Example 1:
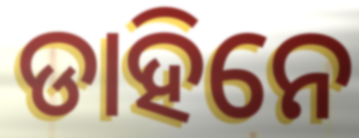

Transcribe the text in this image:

ଡାହିନେ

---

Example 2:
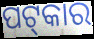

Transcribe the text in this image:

ପଟ୍‌କାର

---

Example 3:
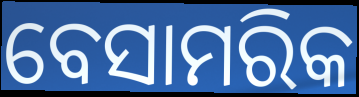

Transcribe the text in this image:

ବେସାମରିକ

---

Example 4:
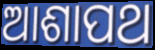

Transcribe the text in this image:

ଆଶାପଥ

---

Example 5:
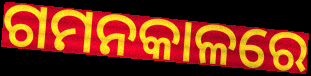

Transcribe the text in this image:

ଗମନକାଳରେ